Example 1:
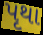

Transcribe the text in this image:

પૃથા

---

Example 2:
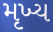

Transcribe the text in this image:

મૃખ્ય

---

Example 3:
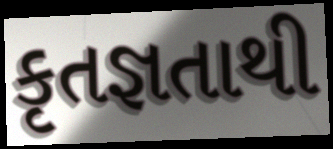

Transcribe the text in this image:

કૃતજ્ઞતાથી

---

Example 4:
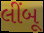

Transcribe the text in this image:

લીંબૂ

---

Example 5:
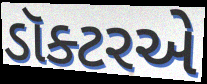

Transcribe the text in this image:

ડૉક્ટરએ